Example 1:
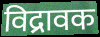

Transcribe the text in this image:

विद्रावक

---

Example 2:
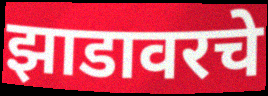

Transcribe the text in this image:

झाडावरचे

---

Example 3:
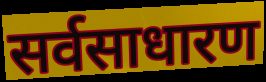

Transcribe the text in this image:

सर्वसाधारण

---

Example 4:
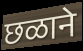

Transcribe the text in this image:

छळाने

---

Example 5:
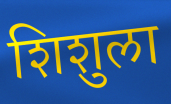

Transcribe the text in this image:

शिशुला